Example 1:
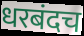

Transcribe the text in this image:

धरबंदच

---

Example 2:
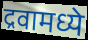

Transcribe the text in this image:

द्रवामध्ये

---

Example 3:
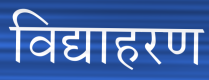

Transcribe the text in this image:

विद्याहरण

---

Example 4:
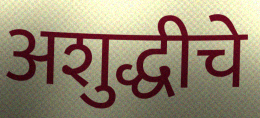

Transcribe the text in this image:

अशुद्धीचे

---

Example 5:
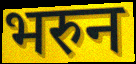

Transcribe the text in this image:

भरुन